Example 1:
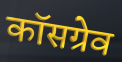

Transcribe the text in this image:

कॉसग्रेव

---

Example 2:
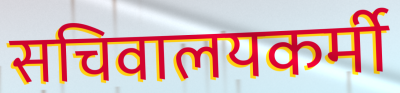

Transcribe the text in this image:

सचिवालयकर्मी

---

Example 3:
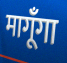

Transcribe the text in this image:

मागूँगा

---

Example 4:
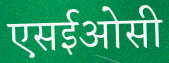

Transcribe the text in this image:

एसईओसी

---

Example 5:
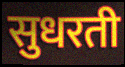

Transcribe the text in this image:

सुधरती